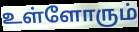
உள்ளோரும்